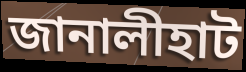
জানালীহাট